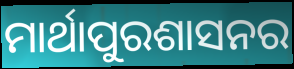
ମାର୍ଥାପୁରଶାସନର